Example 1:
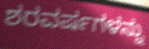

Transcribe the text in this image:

ಶರವರ್ಷಗಳನ್ನು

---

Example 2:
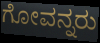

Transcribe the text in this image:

ಗೋವನ್ನರು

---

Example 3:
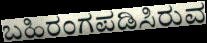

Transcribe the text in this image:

ಬಹಿರಂಗಪಡಿಸಿರುವ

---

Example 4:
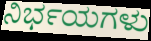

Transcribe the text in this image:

ನಿರ್ಭಯಗಳು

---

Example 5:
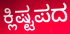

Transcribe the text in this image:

ಕ್ಲಿಷ್ಟಪದ